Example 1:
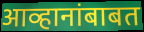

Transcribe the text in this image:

आव्हानांबाबत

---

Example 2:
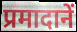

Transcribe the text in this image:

प्रमादानें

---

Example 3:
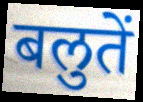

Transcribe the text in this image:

बलुतें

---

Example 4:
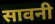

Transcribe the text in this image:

सावनी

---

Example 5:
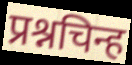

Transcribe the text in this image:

प्रश्नचिन्ह